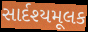
સાર્દશ્યમૂલક